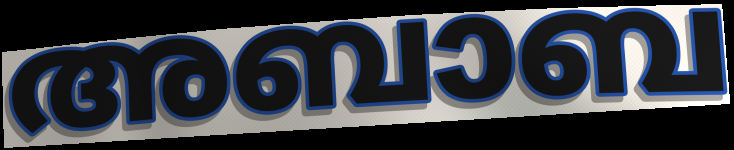
അബാബ